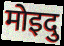
मोइदु